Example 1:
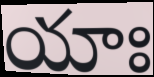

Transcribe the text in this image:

యాః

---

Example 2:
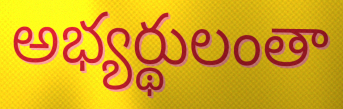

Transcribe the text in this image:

అభ్యర్థులంతా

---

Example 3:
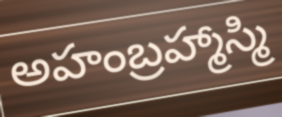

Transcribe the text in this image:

అహంబ్రహ్మాస్మి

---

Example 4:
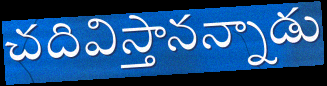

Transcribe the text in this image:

చదివిస్తానన్నాడు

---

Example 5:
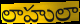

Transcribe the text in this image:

లాహులా